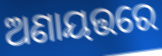
ଅଣାୟତ୍ତରେ